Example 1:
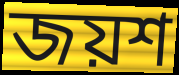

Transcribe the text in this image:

জয়শ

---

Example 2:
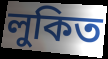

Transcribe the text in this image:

লুকিত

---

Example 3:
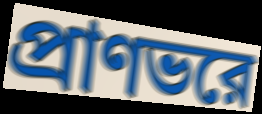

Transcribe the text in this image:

প্রাণভরে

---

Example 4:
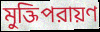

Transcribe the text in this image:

মুক্তিপরায়ণ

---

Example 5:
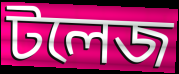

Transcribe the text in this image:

টলেজ